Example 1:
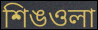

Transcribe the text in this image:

শিঙওলা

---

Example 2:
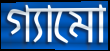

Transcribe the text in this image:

গ্যামো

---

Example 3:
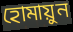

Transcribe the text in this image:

হোমায়ুন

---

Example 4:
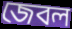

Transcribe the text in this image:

জেবল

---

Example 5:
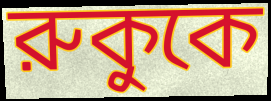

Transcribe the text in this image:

রুকুকে